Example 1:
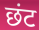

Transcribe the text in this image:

छंट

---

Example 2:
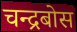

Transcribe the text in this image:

चन्द्रबोस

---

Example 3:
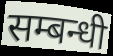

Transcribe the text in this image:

सम्बन्धी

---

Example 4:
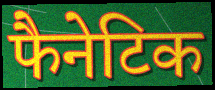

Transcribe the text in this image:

फैनेटिक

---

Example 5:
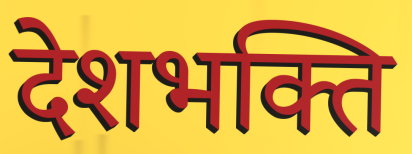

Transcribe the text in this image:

देशभक्ति